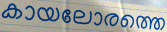
കായലോരത്തെ